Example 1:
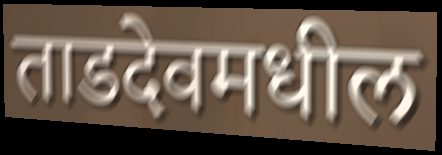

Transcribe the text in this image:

ताडदेवमधील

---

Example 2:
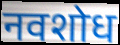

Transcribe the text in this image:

नवशोध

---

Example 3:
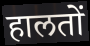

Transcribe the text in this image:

हालतों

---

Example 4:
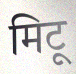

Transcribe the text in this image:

मिटू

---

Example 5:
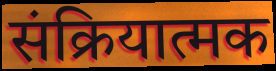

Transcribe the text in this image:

संक्रियात्मक